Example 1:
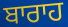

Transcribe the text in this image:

ਬਾਰਾਹ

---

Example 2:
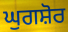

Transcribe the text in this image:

ਘੁਗਸ਼ੋਰ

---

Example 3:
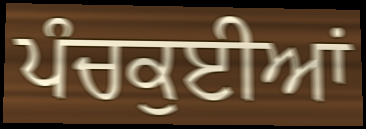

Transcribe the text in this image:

ਪੰਚਕੁਈਆਂ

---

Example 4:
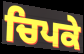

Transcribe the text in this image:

ਚਿਪਕੇ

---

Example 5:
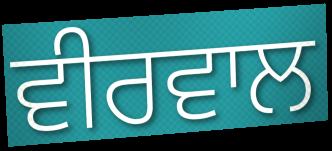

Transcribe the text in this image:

ਵੀਰਵਾਲ